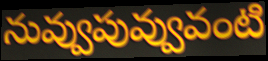
నువ్వుపువ్వువంటి